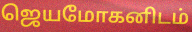
ஜெயமோகனிடம்